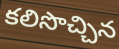
కలిసొచ్చిన